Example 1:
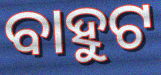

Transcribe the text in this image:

ବାହୁଟ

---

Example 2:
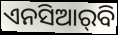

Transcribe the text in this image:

ଏନସିଆର୍‌ବି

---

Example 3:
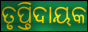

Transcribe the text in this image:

ତୃପ୍ତିଦାୟକ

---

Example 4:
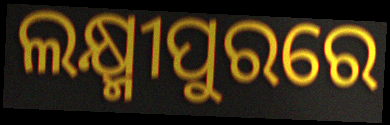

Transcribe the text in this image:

ଲକ୍ଷ୍ମୀପୁରରେ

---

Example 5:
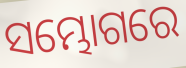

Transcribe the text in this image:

ସମ୍ଭୋଗରେ